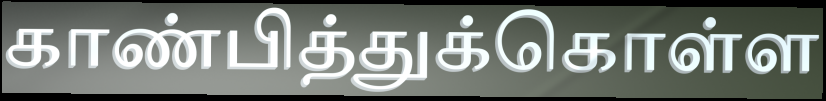
காண்பித்துக்கொள்ள